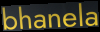
bhanela